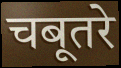
चबूतरे